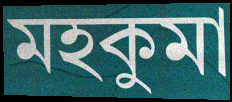
মহকুমা